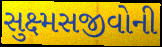
સુક્ષ્મસજીવોની